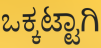
ಒಕ್ಕಟ್ಟಾಗಿ